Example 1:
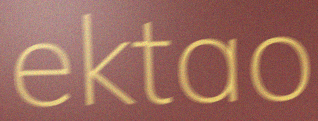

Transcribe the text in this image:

ektao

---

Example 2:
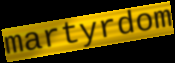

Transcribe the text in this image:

martyrdom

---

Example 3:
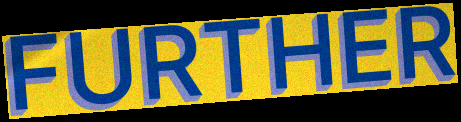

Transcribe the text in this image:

FURTHER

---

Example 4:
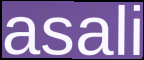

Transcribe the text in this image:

asali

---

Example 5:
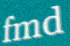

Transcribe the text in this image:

fmd